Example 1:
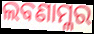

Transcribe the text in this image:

ଲବଣାମ୍ଳର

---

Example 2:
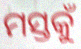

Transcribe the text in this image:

ମସ୍ତକୁଁ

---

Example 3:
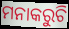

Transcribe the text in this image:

ମନାକରୁଚି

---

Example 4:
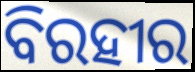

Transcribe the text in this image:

ବିରହୀର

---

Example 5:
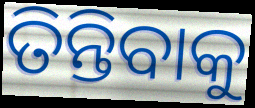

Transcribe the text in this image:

ତିନ୍ତିବାକୁ